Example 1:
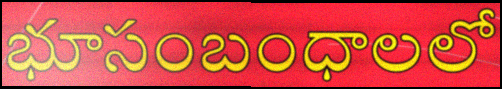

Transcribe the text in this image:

భూసంబంధాలలో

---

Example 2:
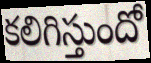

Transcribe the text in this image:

కలిగిస్తుందో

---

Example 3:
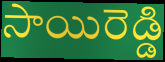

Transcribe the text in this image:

సాయిరెడ్డి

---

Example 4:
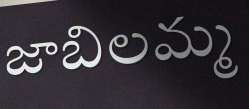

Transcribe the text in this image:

జాబిలమ్మ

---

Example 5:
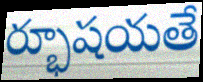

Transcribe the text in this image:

ర్భూషయతే